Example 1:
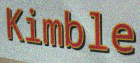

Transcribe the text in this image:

Kimble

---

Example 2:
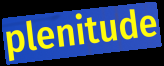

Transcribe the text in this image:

plenitude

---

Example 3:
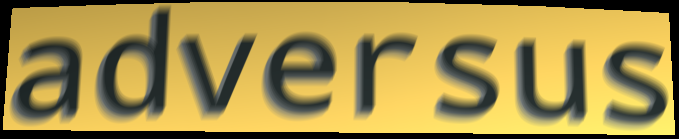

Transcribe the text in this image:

adversus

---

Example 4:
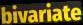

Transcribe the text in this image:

bivariate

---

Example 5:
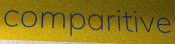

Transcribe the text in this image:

comparitive